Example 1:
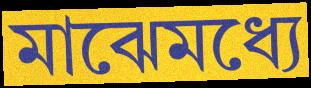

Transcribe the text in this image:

মাঝেমধ্যে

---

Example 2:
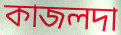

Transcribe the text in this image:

কাজলদা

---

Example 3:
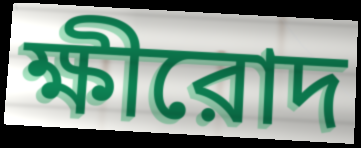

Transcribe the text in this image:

ক্ষীরোদ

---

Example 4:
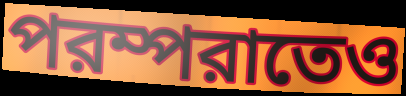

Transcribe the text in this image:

পরম্পরাতেও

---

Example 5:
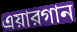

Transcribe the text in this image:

এয়ারগান